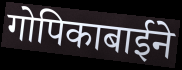
गोपिकाबाईने